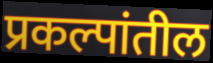
प्रकल्पांतील